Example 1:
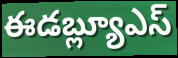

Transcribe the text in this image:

ఈడబ్ల్యూఎస్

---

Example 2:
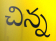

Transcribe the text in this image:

చిన్న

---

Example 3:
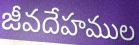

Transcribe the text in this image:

జీవదేహముల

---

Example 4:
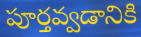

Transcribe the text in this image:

పూర్తవ్వడానికి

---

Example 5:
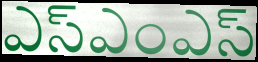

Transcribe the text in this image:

ఎస్ఎంఎస్